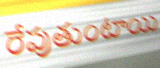
రేపుతుంటాయి